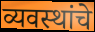
व्यवस्थांचे